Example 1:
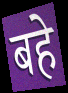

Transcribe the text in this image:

बहे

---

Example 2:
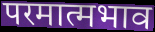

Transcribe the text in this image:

परमात्मभाव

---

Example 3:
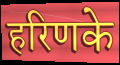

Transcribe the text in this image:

हरिणके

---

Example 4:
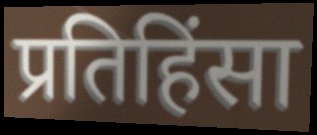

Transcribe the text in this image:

प्रतिहिंसा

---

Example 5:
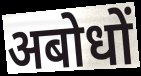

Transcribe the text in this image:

अबोधों